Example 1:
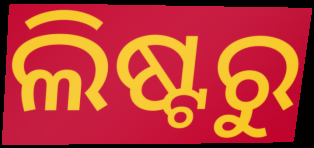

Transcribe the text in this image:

ଲିଷ୍ଟରୁ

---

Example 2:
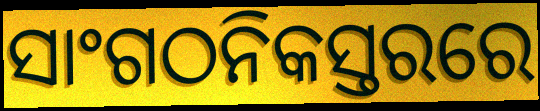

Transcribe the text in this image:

ସାଂଗଠନିକସ୍ତରରେ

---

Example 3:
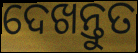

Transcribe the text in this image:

ଦେଖନ୍ତୁତ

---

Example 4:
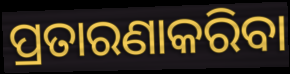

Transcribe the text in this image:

ପ୍ରତାରଣାକରିବା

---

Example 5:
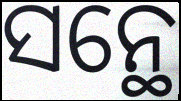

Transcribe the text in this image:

ସନ୍ଥେ